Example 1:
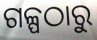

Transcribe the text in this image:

ଗଳ୍ପଠାରୁ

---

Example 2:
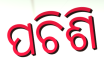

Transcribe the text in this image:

ପଚିଶି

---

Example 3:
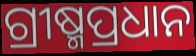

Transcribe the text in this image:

ଗ୍ରୀଷ୍ମପ୍ରଧାନ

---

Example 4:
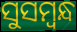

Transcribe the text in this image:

ସୁସମ୍ବନ୍ଧ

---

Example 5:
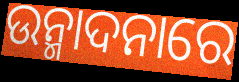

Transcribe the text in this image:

ଉନ୍ମାଦନାରେ